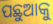
ପଛୁଆକୁ